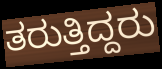
ತರುತ್ತಿದ್ದರು